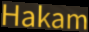
Hakam